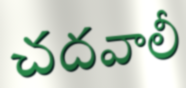
చదవాలీ